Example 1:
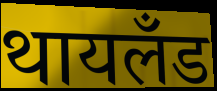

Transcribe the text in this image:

थायलँड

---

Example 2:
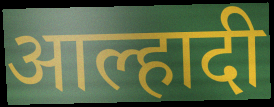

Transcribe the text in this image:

आल्हादी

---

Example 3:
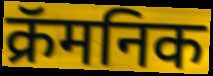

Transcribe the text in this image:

क्रॅमनिक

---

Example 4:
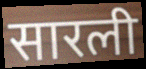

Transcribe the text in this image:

सारली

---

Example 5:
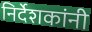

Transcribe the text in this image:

निर्देशकांनी